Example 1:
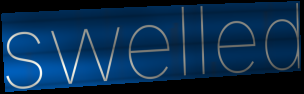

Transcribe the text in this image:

swelled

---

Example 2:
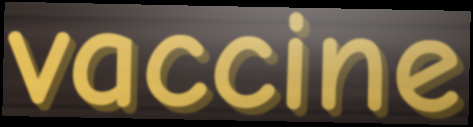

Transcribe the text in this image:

vaccine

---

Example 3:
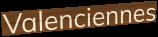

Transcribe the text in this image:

Valenciennes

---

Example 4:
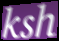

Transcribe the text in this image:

ksh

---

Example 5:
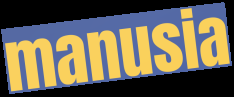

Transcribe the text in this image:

manusia